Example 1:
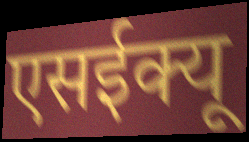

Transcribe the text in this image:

एसईक्यू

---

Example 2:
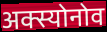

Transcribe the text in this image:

अक्स्योनोव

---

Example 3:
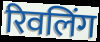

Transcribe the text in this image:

रिवलिंग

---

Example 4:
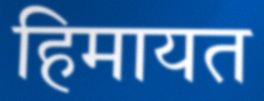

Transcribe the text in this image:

हिमायत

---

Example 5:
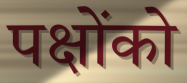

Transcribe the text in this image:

पक्षोंको